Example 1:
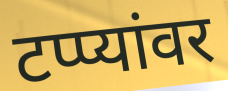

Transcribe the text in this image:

टप्प्यांवर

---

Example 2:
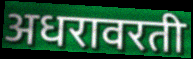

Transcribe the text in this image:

अधरावरती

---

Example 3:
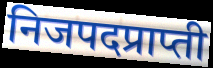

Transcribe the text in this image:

निजपदप्राप्ती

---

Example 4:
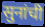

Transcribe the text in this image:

सुनांची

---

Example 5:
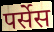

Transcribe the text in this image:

पर्सेस